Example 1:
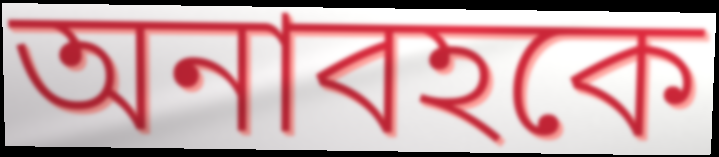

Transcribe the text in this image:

অনাবহকে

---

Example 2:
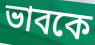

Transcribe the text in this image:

ভাবকে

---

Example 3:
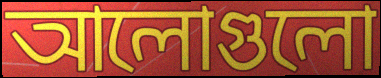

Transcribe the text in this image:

আলোগুলো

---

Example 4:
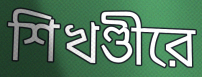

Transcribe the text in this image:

শিখণ্ডীরে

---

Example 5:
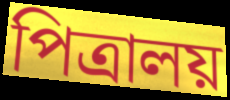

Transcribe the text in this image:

পিত্রালয়